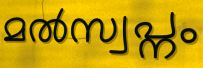
മൽസ്വപ്നം